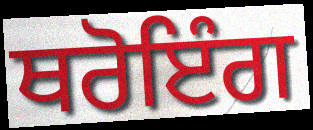
ਥਰੋਇੰਗ